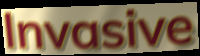
Invasive